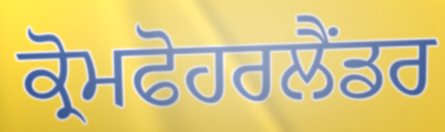
ਕ੍ਰੋਮਫੋਹਰਲੈਂਡਰ